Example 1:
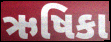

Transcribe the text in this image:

ઋષિકા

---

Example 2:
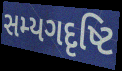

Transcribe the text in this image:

સમ્યગદૃષ્ટિ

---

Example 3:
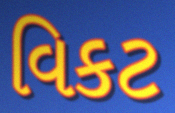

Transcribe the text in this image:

વિકટ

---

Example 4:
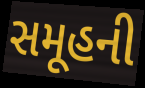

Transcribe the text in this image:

સમૂહની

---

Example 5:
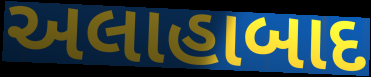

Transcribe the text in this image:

અલાહાબાદ